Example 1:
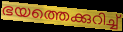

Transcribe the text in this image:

ഭയത്തെക്കുറിച്ച്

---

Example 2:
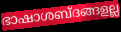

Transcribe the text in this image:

ഭാഷാശബ്ദങ്ങളല്ല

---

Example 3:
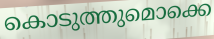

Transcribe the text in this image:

കൊടുത്തുമൊക്കെ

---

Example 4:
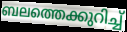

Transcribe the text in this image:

ബലത്തെക്കുറിച്ച്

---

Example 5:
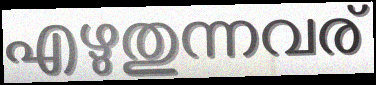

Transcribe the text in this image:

എഴുതുന്നവര്